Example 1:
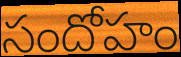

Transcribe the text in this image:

సందోహం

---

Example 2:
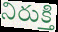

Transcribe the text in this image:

నిరుక్తి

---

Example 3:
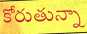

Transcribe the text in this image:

కోరుతున్నా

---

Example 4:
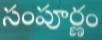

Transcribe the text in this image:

సంపూర్ణం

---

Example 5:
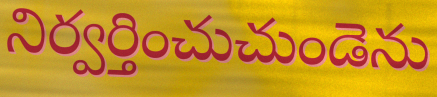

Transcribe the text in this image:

నిర్వర్తించుచుండెను